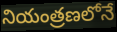
నియంత్రణలోనే